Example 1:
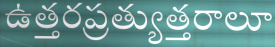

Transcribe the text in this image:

ఉత్తరప్రత్యుత్తరాలూ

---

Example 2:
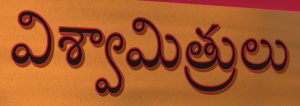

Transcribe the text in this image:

విశ్వామిత్రులు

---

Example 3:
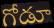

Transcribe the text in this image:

గోడూ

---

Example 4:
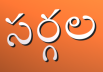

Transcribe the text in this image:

సర్గల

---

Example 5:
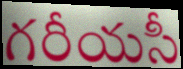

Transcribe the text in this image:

గరీయసీ